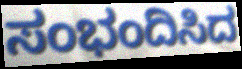
ಸಂಭಂದಿಸಿದ